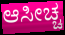
ಆಸೀಚ್ಚ